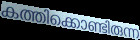
കത്തിക്കൊണ്ടിരുന്ന